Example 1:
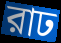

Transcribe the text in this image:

রাঢ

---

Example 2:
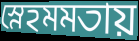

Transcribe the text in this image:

স্নেহমমতায়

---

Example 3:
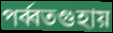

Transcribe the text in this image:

পর্ব্বতগুহায়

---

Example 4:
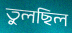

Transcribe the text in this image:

তুলছিল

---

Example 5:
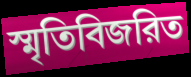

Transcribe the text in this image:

স্মৃতিবিজরিত